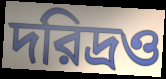
দরিদ্রও